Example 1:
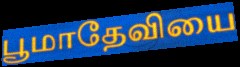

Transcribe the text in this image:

பூமாதேவியை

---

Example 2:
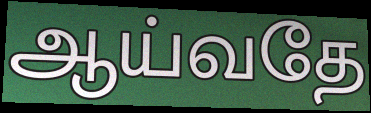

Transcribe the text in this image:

ஆய்வதே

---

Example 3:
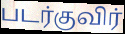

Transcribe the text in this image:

படர்குவிர்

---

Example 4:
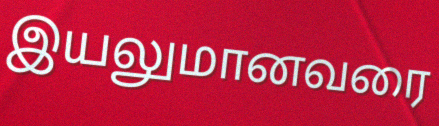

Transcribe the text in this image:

இயலுமானவரை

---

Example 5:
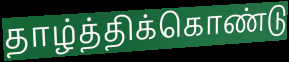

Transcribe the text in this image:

தாழ்த்திக்கொண்டு